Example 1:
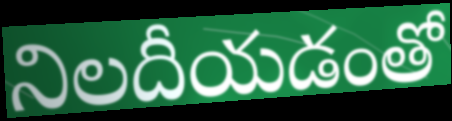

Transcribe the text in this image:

నిలదీయడంతో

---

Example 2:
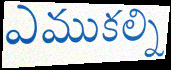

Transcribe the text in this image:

ఎముకల్ని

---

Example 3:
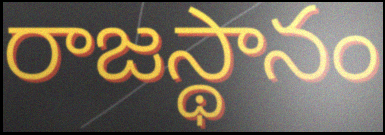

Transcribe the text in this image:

రాజస్థానం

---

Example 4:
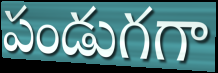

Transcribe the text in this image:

పండుగగా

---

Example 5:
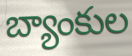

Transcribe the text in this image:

బ్యాంకుల